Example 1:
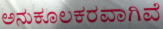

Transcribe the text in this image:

ಅನುಕೂಲಕರವಾಗಿವೆ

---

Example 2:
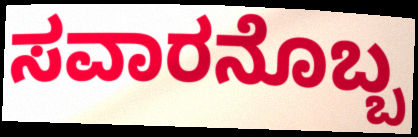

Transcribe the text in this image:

ಸವಾರನೊಬ್ಬ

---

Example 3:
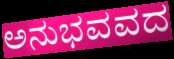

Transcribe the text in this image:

ಅನುಭವವದ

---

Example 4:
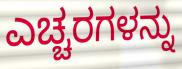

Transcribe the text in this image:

ಎಚ್ಚರಗಳನ್ನು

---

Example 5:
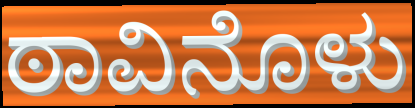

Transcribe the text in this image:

ಠಾವಿನೊಳು